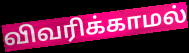
விவரிக்காமல்